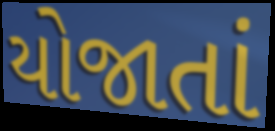
યોજાતાં